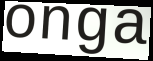
onga